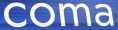
coma